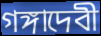
গঙ্গাদেবী